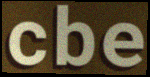
cbe